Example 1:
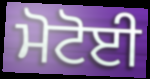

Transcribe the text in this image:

ਮੋਟੋਈ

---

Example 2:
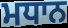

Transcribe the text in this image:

ਮਧਾਨ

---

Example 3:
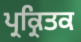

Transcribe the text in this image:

ਪ੍ਰਕ੍ਰਿਤਕ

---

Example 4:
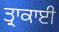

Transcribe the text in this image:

ਤ੍ਰਾਕਾਈ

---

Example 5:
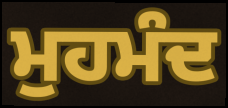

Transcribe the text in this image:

ਮੁਹਮੰਦ